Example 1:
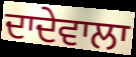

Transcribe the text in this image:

ਦਾਦੇਵਾਲਾ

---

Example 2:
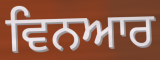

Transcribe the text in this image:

ਵਿਨਆਰ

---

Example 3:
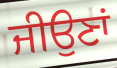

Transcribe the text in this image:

ਜੀਉਣਾਂ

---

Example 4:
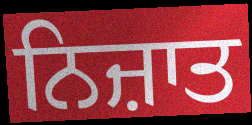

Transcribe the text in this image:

ਨਿਜ਼ਾਤ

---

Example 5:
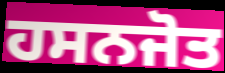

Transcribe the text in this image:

ਹਸਨਜੋਤ